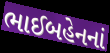
ભાઈબહેનનાં